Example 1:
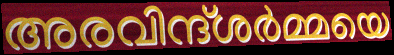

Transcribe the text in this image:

അരവിന്ദ്ശർമ്മയെ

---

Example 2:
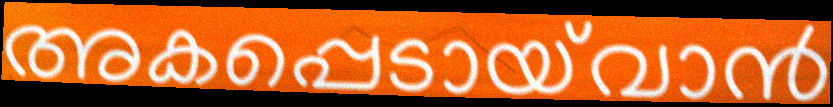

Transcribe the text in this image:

അകപ്പെടായ്‌വാൻ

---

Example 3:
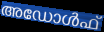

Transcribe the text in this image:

അഡോൾഫ്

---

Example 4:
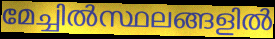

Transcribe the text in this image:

മേച്ചിൽസ്ഥലങ്ങളിൽ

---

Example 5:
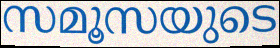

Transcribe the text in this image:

സമൂസയുടെ